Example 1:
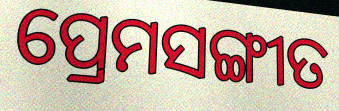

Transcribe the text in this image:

ପ୍ରେମସଙ୍ଗୀତ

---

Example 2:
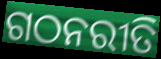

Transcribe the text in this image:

ଗଠନରୀତି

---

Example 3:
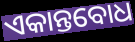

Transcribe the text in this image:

ଏକାନ୍ତବୋଧ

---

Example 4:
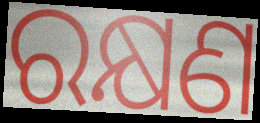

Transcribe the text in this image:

ରକ୍ଷଣ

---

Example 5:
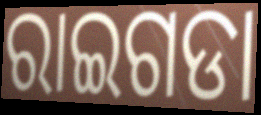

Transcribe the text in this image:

ରାଇଗଡା